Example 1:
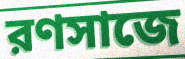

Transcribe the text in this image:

রণসাজে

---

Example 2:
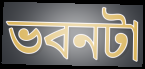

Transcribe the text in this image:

ভবনটা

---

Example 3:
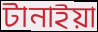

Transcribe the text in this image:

টানাইয়া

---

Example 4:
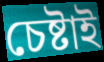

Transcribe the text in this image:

চেষ্টাই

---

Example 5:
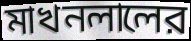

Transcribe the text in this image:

মাখনলালের